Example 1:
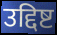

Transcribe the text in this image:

उद्दिष्ट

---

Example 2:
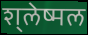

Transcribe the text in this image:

श्लेष्मल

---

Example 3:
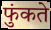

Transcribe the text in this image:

फुंकते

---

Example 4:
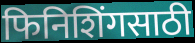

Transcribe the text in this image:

फिनिशिंगसाठी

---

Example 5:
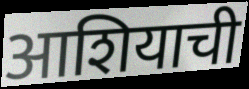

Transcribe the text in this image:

आशियाची